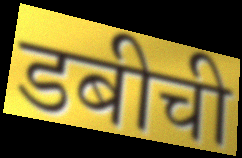
डबीची